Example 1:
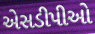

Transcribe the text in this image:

એસડીપીઓ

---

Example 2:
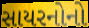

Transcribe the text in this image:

સાયરનોનો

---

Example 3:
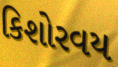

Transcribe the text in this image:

કિશોરવય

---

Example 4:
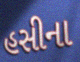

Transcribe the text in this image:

હસીના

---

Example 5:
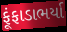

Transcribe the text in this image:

ફૂંફાડાભર્યા